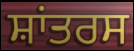
ਸ਼ਾਂਤਰਸ